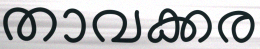
താവക്കര